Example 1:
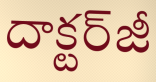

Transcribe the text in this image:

దాక్టర్‌జీ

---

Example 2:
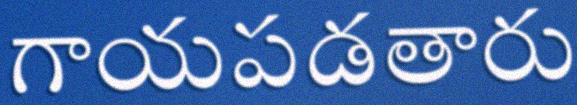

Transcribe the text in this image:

గాయపడతారు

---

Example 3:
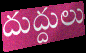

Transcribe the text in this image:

దుద్దులు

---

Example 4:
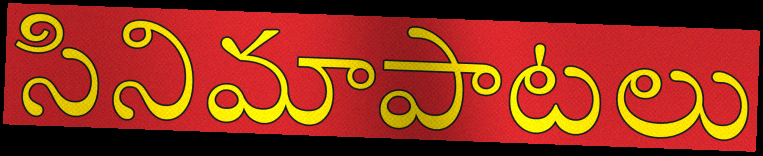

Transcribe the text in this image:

సినిమాపాటలు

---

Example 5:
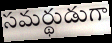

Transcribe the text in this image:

సమర్థుడుగా